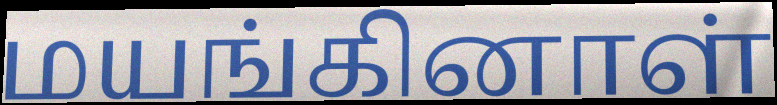
மயங்கினாள்